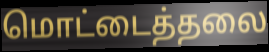
மொட்டைத்தலை